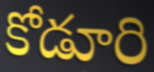
కోడూరి